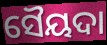
ସୈୟଦା